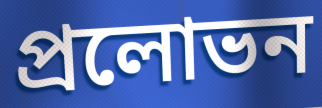
প্রলোভন